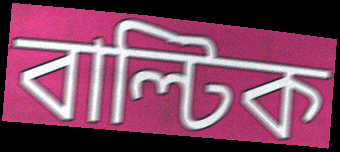
বাল্টিক